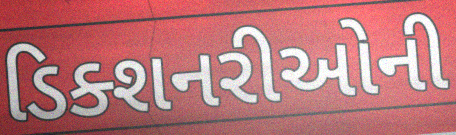
ડિક્શનરીઓની